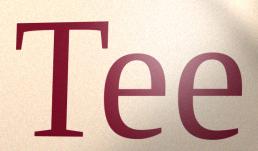
Tee